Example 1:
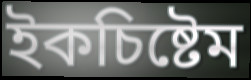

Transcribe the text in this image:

ইকচিষ্টেম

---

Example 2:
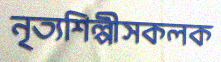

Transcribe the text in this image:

নৃত্যশিল্পীসকলক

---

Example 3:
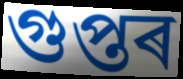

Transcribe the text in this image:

গুপ্তৰ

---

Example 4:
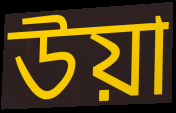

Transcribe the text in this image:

উয়া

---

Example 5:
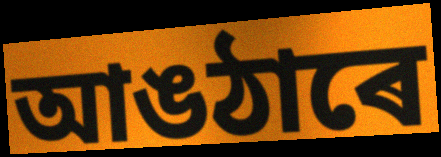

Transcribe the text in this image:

আঙঠাৰে